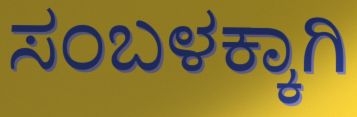
ಸಂಬಳಕ್ಕಾಗಿ